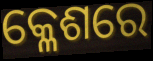
କ୍ଳେଶରେ